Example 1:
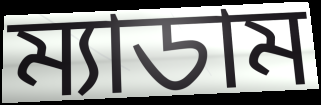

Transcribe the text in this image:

ম্যাডাম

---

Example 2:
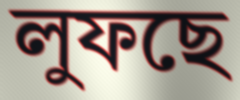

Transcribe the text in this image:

লুফছে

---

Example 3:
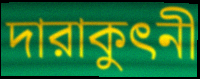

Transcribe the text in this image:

দারাকুৎনী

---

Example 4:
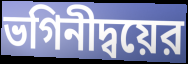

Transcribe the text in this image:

ভগিনীদ্বয়ের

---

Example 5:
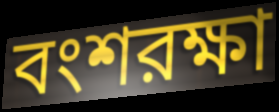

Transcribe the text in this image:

বংশরক্ষা